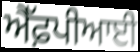
ਐੱਫ਼ਪੀਆਈ